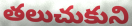
తలుచుకుని